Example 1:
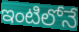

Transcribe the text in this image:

ఇంటిలోనే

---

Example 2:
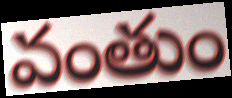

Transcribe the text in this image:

వంతుం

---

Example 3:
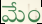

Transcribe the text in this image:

మేం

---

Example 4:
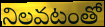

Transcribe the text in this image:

నిలవటంతో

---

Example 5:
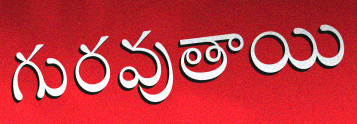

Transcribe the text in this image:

గురవుతాయి